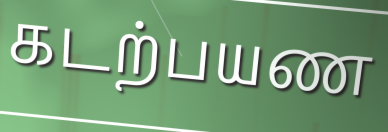
கடற்பயண